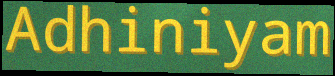
Adhiniyam